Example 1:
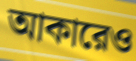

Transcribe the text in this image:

আকারেও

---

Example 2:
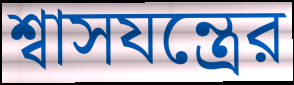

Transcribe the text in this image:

শ্বাসযন্ত্রের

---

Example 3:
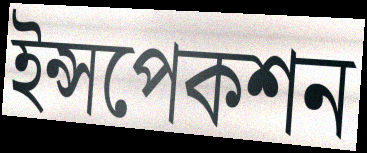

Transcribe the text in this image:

ইন্সপেকশন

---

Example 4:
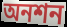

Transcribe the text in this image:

অনশন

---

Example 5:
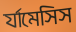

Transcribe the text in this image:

র্যামেসিস